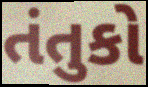
તંતુકો